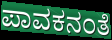
ಪಾವಕನಂತೆ